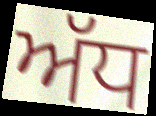
ਅੱਧ